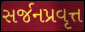
સર્જનપ્રવૃત્ત